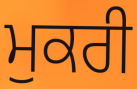
ਮੁਕਰੀ